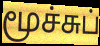
மூச்சுப்